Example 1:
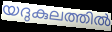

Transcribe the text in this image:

യദുകുലത്തിൽ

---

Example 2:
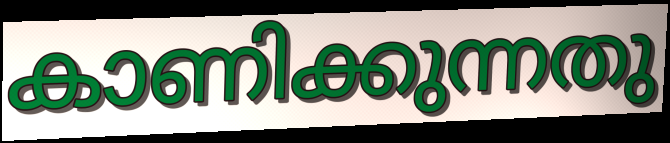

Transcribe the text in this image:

കാണിക്കുന്നതു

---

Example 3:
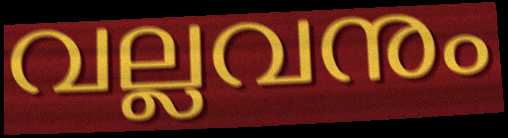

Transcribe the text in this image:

വല്ലവനും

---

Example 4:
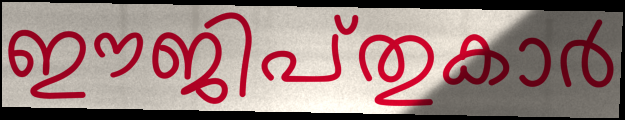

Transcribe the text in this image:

ഈജിപ്‌തുകാർ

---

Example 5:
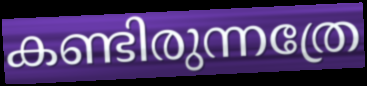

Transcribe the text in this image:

കണ്ടിരുന്നത്രേ